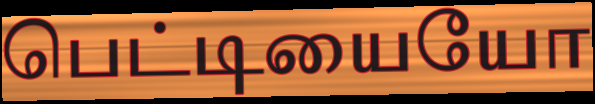
பெட்டியையோ